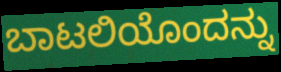
ಬಾಟಲಿಯೊಂದನ್ನು